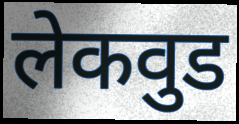
लेकवुड